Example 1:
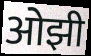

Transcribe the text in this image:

ओझी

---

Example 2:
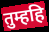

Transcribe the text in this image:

तुम्हहि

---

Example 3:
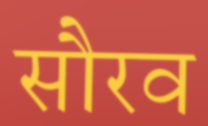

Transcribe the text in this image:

सौरव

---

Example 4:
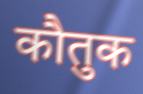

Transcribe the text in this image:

कौतुक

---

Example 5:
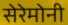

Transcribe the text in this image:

सेरेमोनी